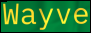
Wayve